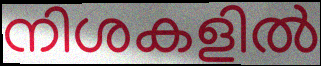
നിശകളിൽ